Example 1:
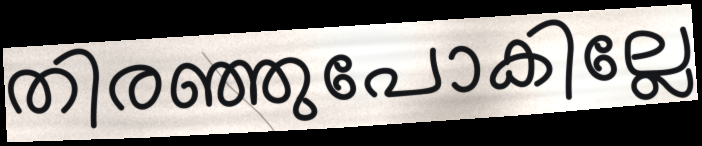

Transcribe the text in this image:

തിരഞ്ഞുപോകില്ലേ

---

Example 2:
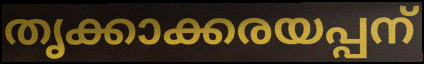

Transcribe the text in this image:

തൃക്കാക്കരയപ്പന്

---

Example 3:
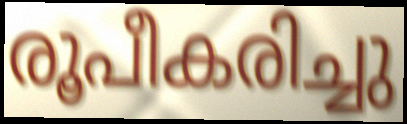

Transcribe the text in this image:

രൂപീകരിച്ചു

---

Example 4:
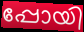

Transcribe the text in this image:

പ്പോയി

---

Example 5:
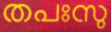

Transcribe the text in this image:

തപഃസു